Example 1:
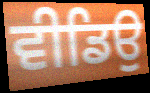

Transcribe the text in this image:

ਵੀਡਿਉ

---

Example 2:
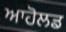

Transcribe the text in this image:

ਆਹੋਲਡ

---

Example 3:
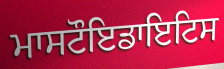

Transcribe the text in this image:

ਮਾਸਟੌਇਡਾਇਟਿਸ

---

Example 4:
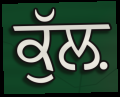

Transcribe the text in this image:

ਕੁੱਲ਼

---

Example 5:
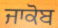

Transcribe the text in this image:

ਜਾਕੋਬ